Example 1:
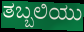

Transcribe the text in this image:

ತಬ್ಬಲಿಯು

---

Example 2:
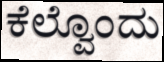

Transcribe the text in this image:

ಕೆಲ್ವೊಂದು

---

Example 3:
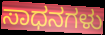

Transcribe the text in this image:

ಸಾಧನಗಳು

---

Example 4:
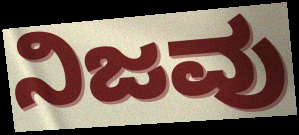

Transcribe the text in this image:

ನಿಜವು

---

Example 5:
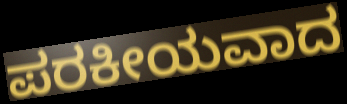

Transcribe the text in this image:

ಪರಕೀಯವಾದ